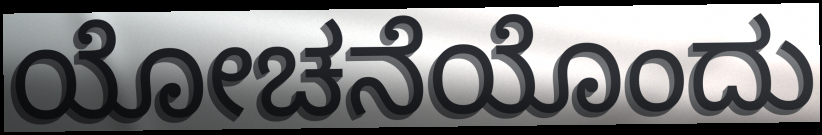
ಯೋಚನೆಯೊಂದು